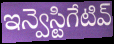
ఇన్వెస్టిగేటివ్